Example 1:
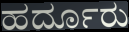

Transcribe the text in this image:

ಹರ್ದೂರು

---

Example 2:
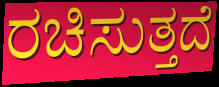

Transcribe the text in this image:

ರಚಿಸುತ್ತದೆ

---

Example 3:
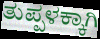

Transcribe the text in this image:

ತುಪ್ಪಳಕ್ಕಾಗಿ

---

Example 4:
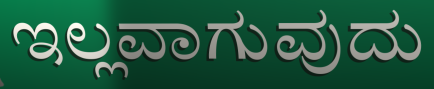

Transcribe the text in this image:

ಇಲ್ಲವಾಗುವುದು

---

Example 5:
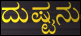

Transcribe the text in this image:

ದುಷ್ಟನು